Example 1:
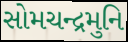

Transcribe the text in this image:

સોમચન્દ્રમુનિ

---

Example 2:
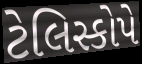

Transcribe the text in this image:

ટેલિસ્કોપે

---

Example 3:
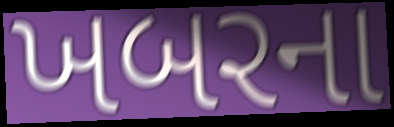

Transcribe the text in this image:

ખબરના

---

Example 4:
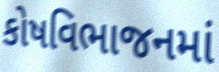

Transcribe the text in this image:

કોષવિભાજનમાં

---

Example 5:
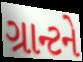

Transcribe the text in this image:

ગ્રાન્ટને